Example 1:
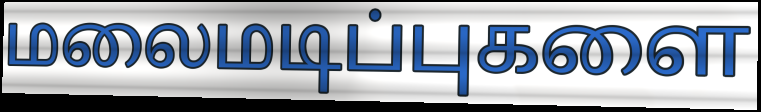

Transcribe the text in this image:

மலைமடிப்புகளை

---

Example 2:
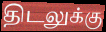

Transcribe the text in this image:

திடலுக்கு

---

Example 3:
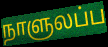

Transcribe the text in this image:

நாளுலப்ப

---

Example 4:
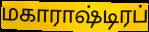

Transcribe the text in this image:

மகாராஷ்டிரப்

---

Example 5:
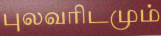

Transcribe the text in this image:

புலவரிடமும்